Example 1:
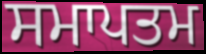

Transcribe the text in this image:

ਸਮਾਪਤਮ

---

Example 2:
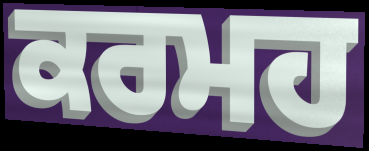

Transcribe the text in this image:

ਕਰਮਹ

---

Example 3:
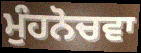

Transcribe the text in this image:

ਮੁੰਹਨੋਚਵਾ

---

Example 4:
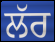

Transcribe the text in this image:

ਲੱਰ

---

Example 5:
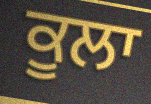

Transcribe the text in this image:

ਕੂਲਾ